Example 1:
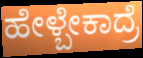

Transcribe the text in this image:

ಹೇಳ್ಬೇಕಾದ್ರೆ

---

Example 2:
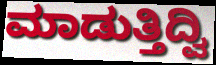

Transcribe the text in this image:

ಮಾಡುತ್ತಿದ್ವಿ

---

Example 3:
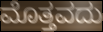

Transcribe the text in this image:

ಮೊತ್ತವದು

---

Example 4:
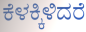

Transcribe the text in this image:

ಕೆಳಕ್ಕಿಳಿದರೆ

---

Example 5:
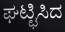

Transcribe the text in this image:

ಘಟ್ಟಿಸಿದ